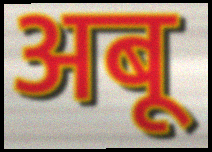
अबू